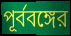
পূর্ববঙ্গের